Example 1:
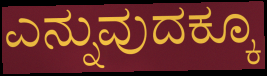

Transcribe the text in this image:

ಎನ್ನುವುದಕ್ಕೂ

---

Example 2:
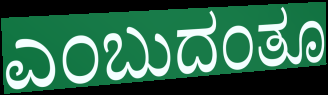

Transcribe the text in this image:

ಎಂಬುದಂತೂ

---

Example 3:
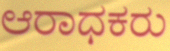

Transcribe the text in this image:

ಆರಾಧಕರು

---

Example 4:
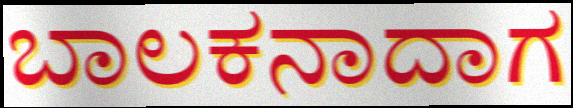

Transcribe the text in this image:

ಬಾಲಕನಾದಾಗ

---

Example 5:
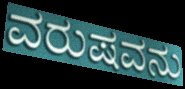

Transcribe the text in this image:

ವರುಷವನು